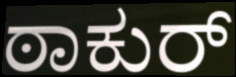
ಠಾಕುರ್